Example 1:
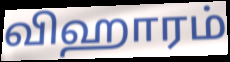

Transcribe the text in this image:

விஹாரம்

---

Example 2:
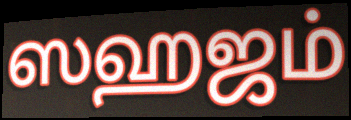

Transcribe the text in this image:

ஸஹஜம்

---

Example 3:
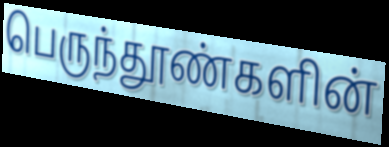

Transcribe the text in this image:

பெருந்தூண்களின்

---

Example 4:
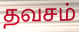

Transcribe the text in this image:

தவசம்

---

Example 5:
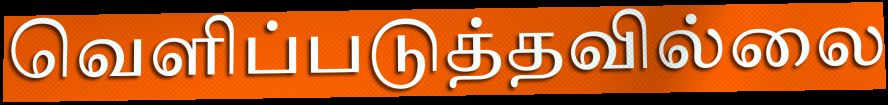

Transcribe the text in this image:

வெளிப்படுத்தவில்லை